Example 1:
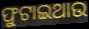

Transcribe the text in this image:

ଫୁଟାଇଥାଉ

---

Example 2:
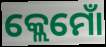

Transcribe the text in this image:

କ୍ଲେମୋଁ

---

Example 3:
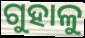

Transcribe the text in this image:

ଗୁହାଳୁ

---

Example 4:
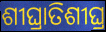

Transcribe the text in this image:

ଶୀଘ୍ରାତିଶୀଘ୍ର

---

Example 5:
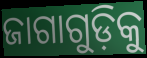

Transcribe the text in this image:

ଜାଗାଗୁଡ଼ିକୁ